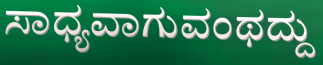
ಸಾಧ್ಯವಾಗುವಂಥದ್ದು